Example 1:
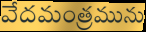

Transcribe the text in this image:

వేదమంత్రమును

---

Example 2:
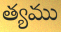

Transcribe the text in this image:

త్యము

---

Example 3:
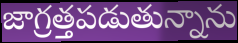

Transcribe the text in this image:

జాగ్రత్తపడుతున్నాను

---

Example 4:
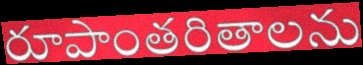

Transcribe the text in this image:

రూపాంతరితాలను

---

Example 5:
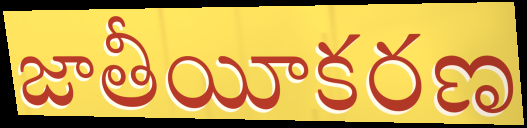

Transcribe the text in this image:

జాతీయీకరణ